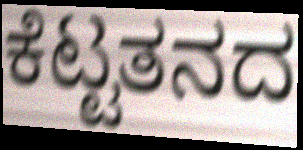
ಕೆಟ್ಟತನದ